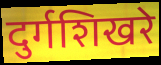
दुर्गशिखरे